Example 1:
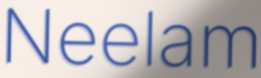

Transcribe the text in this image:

Neelam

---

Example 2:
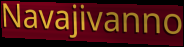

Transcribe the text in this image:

Navajivanno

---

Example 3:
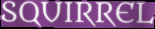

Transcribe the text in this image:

SQUIRREL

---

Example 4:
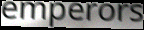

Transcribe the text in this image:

emperors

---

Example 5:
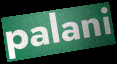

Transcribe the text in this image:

palani